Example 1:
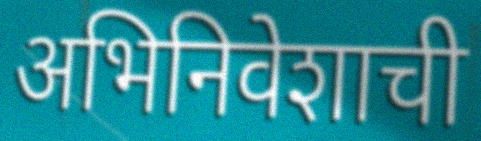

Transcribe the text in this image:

अभिनिवेशाची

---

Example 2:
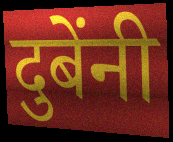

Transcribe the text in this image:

दुबेंनी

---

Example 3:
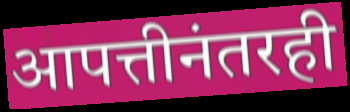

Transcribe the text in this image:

आपत्तीनंतरही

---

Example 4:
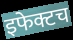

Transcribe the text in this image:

इफेक्टच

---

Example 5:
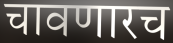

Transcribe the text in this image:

चावणारच